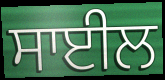
ਸਾਈਲ